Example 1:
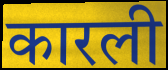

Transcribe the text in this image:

कारली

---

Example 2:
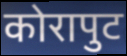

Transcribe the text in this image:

कोरापुट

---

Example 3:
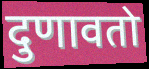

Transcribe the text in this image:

दुणावतो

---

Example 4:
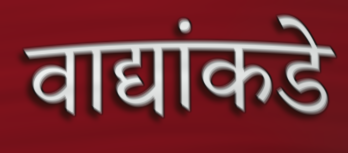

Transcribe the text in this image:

वाद्यांकडे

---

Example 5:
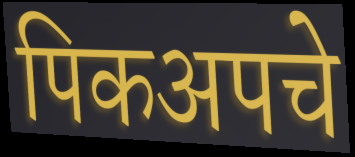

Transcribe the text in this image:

पिकअपचे